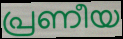
പ്രണീയ